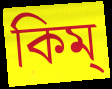
কিম্